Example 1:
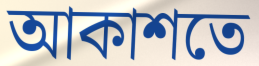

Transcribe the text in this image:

আকাশতে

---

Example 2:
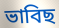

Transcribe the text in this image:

ভাবিছ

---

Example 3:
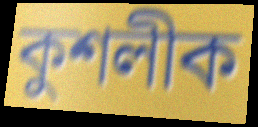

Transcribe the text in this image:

কুশলীক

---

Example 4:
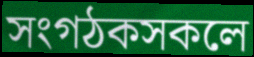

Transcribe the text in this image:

সংগঠকসকলে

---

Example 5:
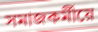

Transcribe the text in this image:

সমাজকৰ্মীয়ে